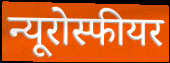
न्यूरोस्फीयर